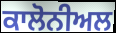
ਕਾਲੋਨੀਅਲ